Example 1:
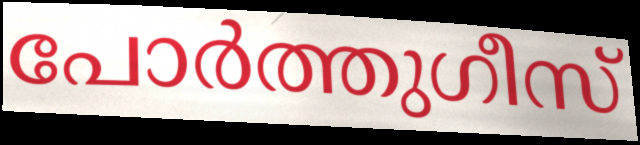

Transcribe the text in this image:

പോർത്തുഗീസ്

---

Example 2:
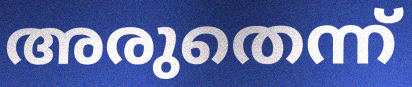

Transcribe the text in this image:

അരുതെന്ന്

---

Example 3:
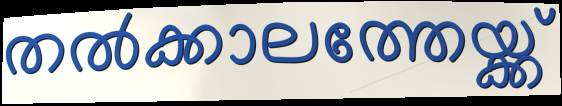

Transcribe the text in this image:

തൽക്കാലത്തേയ്ക്ക്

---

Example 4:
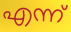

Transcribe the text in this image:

എന്ന്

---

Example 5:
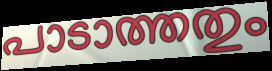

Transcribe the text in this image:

പാടാത്തതും